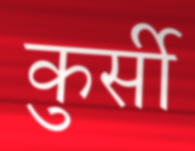
कुर्सी